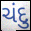
ચંદુ